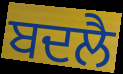
ਬਦਲੈ